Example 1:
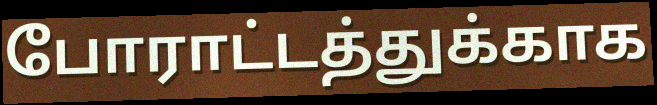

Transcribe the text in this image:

போராட்டத்துக்காக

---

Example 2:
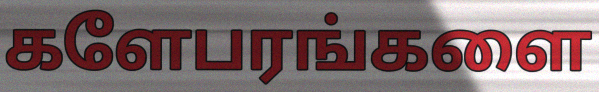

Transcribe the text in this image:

களேபரங்களை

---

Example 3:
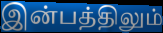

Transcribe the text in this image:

இன்பத்திலும்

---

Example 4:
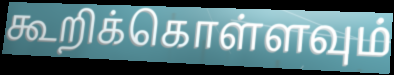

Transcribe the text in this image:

கூறிக்கொள்ளவும்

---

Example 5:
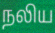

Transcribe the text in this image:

நலிய